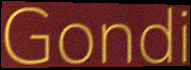
Gondi